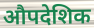
औपदेशिक